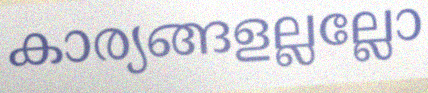
കാര്യങ്ങളല്ലല്ലോ